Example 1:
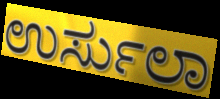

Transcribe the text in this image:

ಉರ್ಸುಲಾ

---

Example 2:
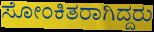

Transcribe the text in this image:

ಸೋಂಕಿತರಾಗಿದ್ದರು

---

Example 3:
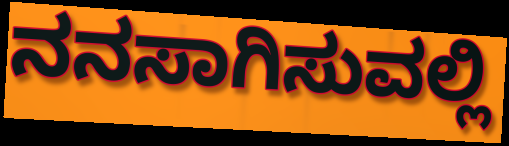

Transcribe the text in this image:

ನನಸಾಗಿಸುವಲ್ಲಿ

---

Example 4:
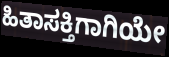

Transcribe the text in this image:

ಹಿತಾಸಕ್ತಿಗಾಗಿಯೇ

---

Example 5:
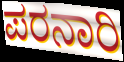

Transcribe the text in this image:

ಪರನಾರಿ